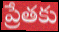
ప్రేతకు